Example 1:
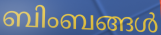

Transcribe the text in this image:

ബിംബങ്ങൾ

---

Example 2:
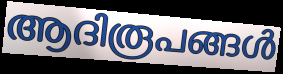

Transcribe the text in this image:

ആദിരൂപങ്ങൾ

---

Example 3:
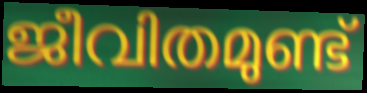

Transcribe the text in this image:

ജീവിതമുണ്ട്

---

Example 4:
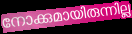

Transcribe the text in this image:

നോക്കുമായിരുന്നില്ല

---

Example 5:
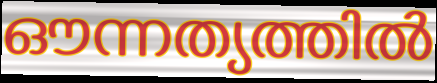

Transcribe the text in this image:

ഔന്നത്യത്തിൽ